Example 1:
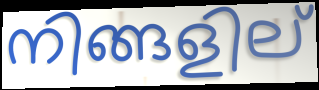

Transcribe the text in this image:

നിങ്ങളില്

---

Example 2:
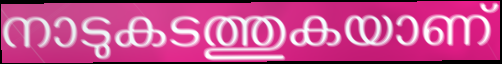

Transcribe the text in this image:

നാടുകടത്തുകയാണ്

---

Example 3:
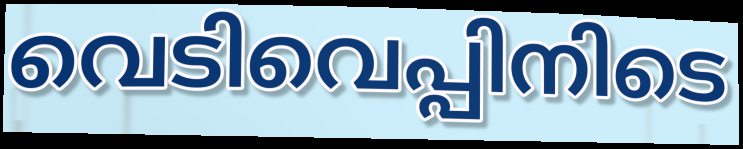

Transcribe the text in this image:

വെടിവെപ്പിനിടെ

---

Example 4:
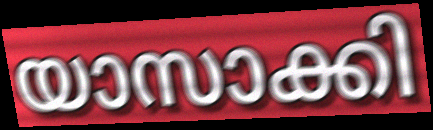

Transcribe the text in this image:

യാസാക്കി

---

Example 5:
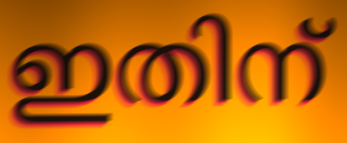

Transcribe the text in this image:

ഇതിന്